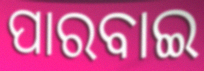
ପାରବାଇ